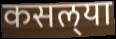
कसल्या